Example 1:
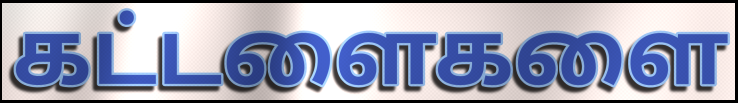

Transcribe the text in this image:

கட்டளைகளை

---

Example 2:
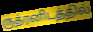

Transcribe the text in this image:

ருத்ரனிடத்தில்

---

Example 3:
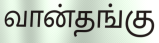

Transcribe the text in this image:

வான்தங்கு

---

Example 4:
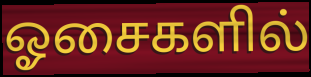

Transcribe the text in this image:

ஓசைகளில்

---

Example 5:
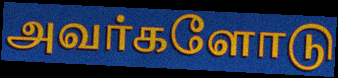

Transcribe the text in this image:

அவர்களோடு